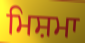
ਮਿਸ਼ਮਾ